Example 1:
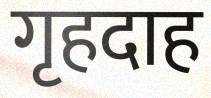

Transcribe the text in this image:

गृहदाह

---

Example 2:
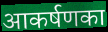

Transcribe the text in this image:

आकर्षणका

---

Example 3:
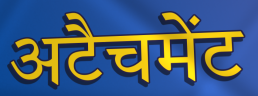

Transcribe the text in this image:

अटैचमेंट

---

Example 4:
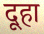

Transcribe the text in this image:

दूहा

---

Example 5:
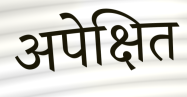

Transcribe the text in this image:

अपेक्षित